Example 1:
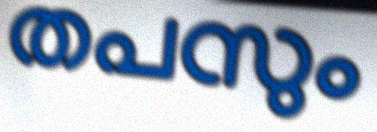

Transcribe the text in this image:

തപസും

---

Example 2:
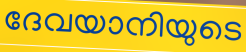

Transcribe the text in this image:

ദേവയാനിയുടെ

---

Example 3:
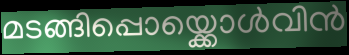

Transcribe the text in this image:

മടങ്ങിപ്പൊയ്ക്കൊൾവിൻ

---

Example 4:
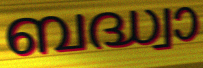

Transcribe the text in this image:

ബദ്ധ്വാ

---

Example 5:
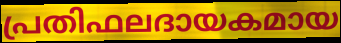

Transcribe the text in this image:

പ്രതിഫലദായകമായ